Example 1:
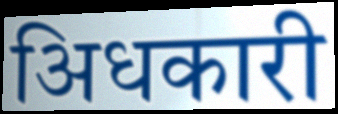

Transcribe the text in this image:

अिधकारी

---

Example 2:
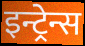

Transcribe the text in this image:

इन्ट्रेन्स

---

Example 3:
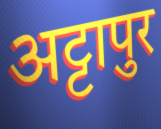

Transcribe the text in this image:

अट्टापुर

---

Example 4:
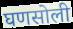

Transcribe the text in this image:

घणसोली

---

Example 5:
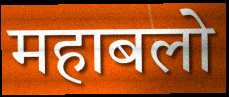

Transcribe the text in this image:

महाबलो